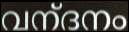
വന്‌ദനം